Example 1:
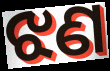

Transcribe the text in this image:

ଝଣ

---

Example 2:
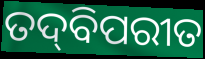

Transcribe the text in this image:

ତଦ୍‍ବିପରୀତ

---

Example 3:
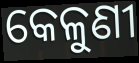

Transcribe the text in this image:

କେଳୁଣୀ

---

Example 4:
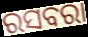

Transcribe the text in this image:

ରସବରା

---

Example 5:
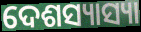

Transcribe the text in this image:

ଦେଶସ୍ୟାସ୍ୟା